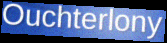
Ouchterlony